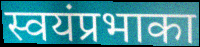
स्वयंप्रभाका